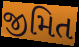
જીમિત